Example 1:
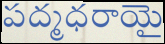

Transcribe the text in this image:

పద్మధరాయై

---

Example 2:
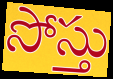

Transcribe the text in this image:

సోస్తు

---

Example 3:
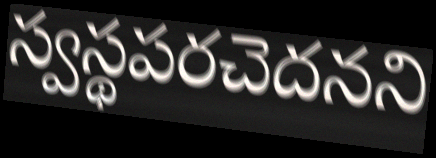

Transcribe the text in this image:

స్వస్థపరచెదనని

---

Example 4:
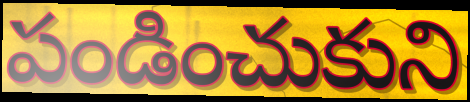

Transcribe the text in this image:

పండించుకుని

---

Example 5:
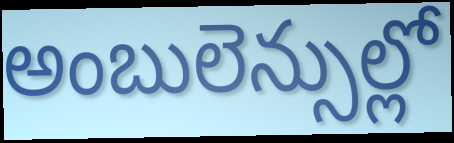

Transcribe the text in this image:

అంబులెన్సుల్లో